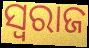
ସ୍ଵରାଜ